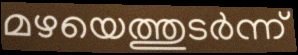
മഴയെത്തുടർന്ന്